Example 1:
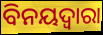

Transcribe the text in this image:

ବିନୟଦ୍ୱାରା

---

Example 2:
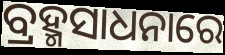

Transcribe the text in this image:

ବ୍ରହ୍ମସାଧନାରେ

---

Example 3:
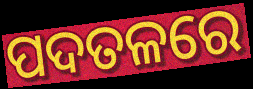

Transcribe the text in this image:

ପଦତଳରେ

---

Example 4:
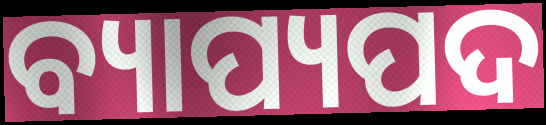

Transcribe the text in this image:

ବ୍ୟାପ୍ୟପଦ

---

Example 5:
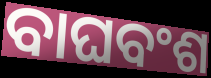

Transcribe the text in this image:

ବାଘବଂଶ